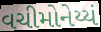
વચીમોનેય્યં